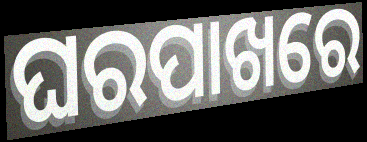
ଘରପାଖରେ